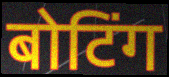
बोटिंग